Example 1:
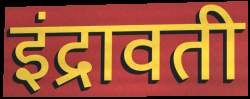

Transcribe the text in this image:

इंद्रावती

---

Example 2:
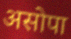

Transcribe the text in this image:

असोपा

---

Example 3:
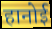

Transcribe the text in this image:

हानोई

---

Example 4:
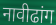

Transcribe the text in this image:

नावीढांग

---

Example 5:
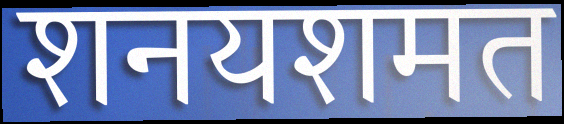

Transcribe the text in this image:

शनयशमत